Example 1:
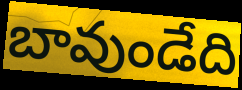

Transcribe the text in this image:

బావుండేది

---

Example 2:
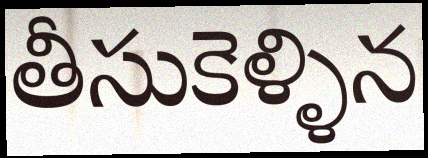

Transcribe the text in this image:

తీసుకెళ్ళిన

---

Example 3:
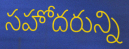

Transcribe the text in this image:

సహోదరున్ని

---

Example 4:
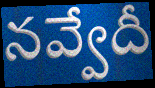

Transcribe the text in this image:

నవ్వేదీ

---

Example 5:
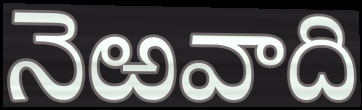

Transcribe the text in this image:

నెఱవాది